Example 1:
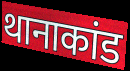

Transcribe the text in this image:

थानाकांड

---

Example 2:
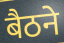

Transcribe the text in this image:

बैठने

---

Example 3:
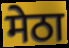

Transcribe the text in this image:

मेठा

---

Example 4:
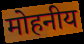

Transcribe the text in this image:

मोहनीय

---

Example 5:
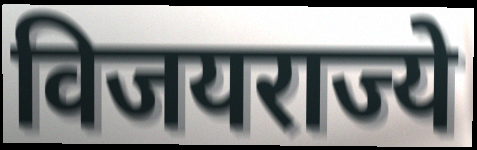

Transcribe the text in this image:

विजयराज्ये